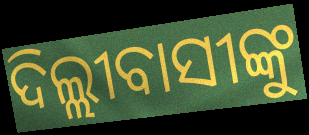
ଦିଲ୍ଲୀବାସୀଙ୍କୁ